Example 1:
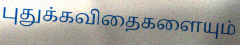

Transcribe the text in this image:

புதுக்கவிதைகளையும்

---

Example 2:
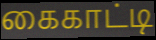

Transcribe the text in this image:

கைகாட்டி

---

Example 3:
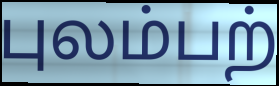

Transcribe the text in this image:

புலம்பற்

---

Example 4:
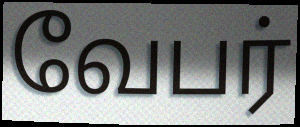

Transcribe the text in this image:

வேபர்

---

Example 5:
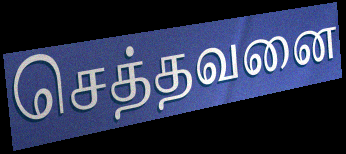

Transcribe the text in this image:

செத்தவனை